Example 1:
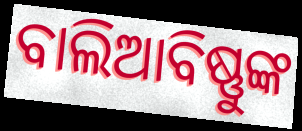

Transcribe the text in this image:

ବାଲିଆବିଷ୍ଣୁଙ୍କ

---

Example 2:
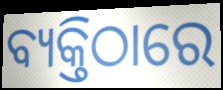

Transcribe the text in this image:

ବ୍ୟକ୍ତିଠାରେ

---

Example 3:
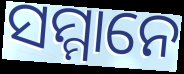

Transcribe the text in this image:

ସମ୍ମାନେ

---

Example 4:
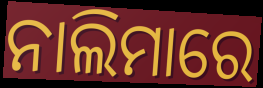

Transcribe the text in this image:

ନାଲିମାରେ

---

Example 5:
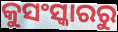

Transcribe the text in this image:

କୁସଂସ୍କାରରୁ